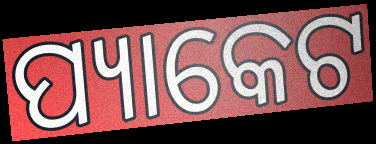
ପ୍ଯାକେଟ